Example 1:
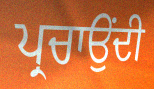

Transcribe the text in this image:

ਪ੍ਰਚਾਉਂਦੀ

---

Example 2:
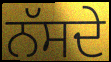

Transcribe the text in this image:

ਨੱਸਦੇ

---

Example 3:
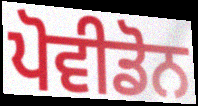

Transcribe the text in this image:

ਪੋਵੀਡੋਨ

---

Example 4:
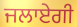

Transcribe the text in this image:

ਜਲਾਏਗੀ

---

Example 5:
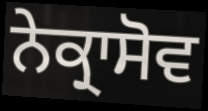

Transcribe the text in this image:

ਨੇਕ੍ਰਾਸੋਵ